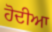
ਹੋਦੀਆ